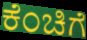
ಕೆಂಚಿಗೆ